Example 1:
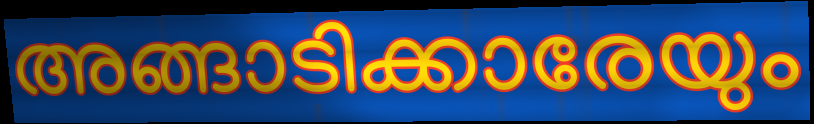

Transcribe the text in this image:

അങ്ങാടിക്കാരേയും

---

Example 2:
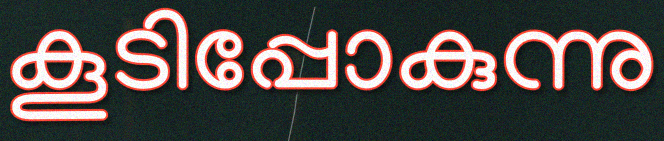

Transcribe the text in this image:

കൂടിപ്പോകുന്നു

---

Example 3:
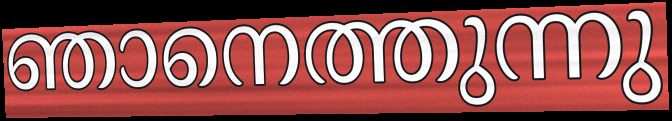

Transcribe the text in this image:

ഞാനെത്തുന്നു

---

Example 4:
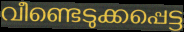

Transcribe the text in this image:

വീണ്ടെടുക്കപ്പെട്ട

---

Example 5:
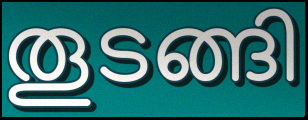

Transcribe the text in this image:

തൂടങ്ങി